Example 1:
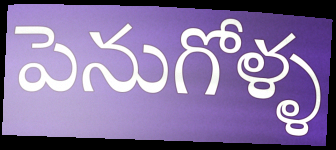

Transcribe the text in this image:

పెనుగోళ్ళ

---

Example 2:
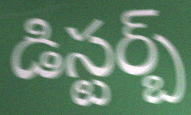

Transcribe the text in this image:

డిస్టర్బ్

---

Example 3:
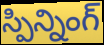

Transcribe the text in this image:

స్పిన్నింగ్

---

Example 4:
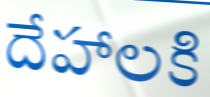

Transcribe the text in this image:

దేహాలకి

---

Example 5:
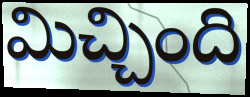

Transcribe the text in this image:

మిచ్చింది